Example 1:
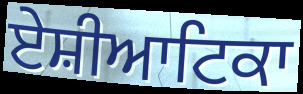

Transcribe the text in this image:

ਏਸ਼ੀਆਟਿਕਾ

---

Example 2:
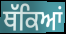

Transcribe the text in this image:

ਥੱਕਿਆਂ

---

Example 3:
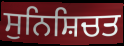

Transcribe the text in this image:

ਸੁਨਿਸ਼ਿਚਤ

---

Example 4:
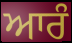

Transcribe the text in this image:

ਆਰੰ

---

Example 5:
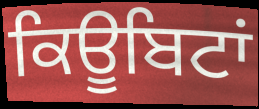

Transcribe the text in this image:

ਕਿਊਬਿਟਾਂ